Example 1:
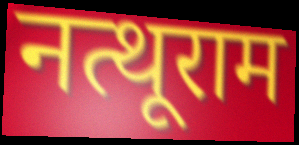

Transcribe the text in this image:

नत्थूराम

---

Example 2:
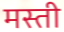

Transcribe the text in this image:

मस्ती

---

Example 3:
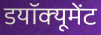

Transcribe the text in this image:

डयॉक्‍यूमेंट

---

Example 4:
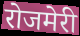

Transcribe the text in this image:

रोजमेरी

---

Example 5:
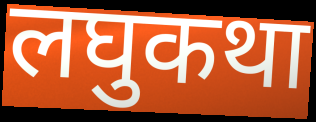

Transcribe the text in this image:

लघुकथा